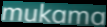
mukama